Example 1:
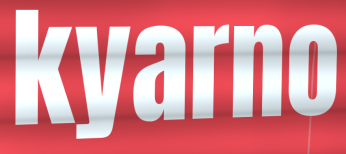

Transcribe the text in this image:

kyarno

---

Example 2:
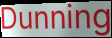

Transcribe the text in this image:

Dunning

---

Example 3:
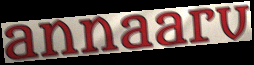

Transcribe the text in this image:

annaaru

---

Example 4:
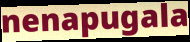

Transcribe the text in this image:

nenapugala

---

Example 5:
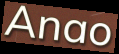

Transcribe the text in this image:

Anao